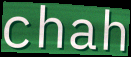
chah